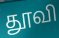
தூவி